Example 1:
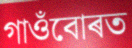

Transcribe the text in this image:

গাওঁবোৰত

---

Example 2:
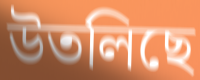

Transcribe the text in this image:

উতলিছে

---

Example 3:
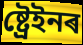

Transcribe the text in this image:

ষ্ট্ৰেইনৰ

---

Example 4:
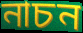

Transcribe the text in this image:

নাচন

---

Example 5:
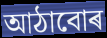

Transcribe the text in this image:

আঠাবোৰ